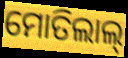
ମୋତିଲାଲ୍